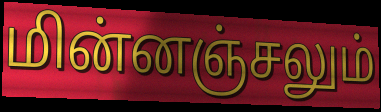
மின்னஞ்சலும்